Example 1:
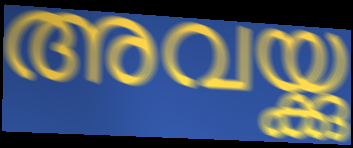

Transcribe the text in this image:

അവയ്ക്കു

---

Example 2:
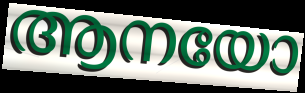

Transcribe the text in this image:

ആനയോ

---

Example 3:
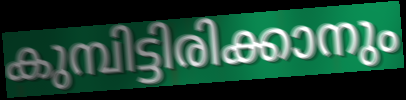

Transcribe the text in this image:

കുമ്പിട്ടിരിക്കാനും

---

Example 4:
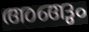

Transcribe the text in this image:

അങ്ങും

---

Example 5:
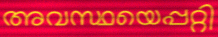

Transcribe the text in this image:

അവസ്ഥയെപ്പറ്റി